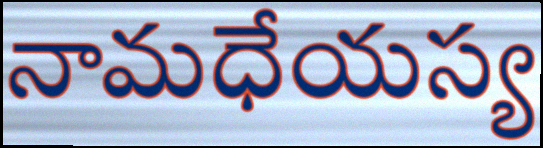
నామధేయస్య